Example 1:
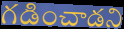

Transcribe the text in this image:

గడించాడని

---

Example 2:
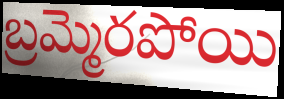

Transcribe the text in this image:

బ్రమ్మెరపోయి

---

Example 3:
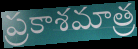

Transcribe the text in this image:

ప్రకాశమాత్ర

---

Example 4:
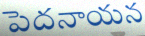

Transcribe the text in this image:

పెదనాయన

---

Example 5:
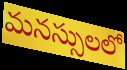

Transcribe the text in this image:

మనస్సులలో